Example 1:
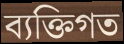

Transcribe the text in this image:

ব্যক্তিগত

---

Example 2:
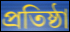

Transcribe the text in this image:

প্ৰতিষ্ঠা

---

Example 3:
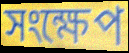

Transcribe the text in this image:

সংক্ষেপ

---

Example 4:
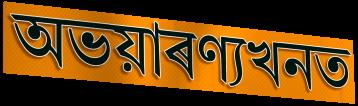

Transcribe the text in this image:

অভয়াৰণ্যখনত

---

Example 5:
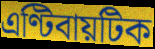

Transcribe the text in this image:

এণ্টিবায়টিক